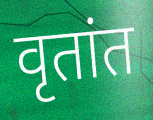
वृतांत